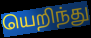
யெறிந்து